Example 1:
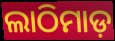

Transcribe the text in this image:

ଲାଠିମାଡ଼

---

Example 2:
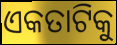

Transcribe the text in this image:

ଏକତାଟିକୁ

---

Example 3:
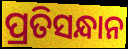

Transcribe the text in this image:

ପ୍ରତିସନ୍ଧାନ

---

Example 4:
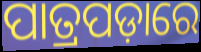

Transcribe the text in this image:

ପାତ୍ରପଡ଼ାରେ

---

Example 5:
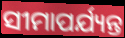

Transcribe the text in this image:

ସୀମାପର୍ଯ୍ୟନ୍ତ